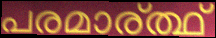
പരമാര്ത്ഥ്